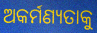
ଅକର୍ମଣ୍ୟତାକୁ